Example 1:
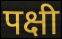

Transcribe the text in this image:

पक्षी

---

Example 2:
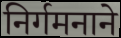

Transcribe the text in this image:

निर्गमनाने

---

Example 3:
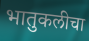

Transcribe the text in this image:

भातुकलीचा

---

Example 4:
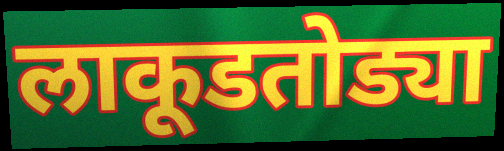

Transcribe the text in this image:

लाकूडतोड्या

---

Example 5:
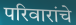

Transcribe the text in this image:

परिवारांचे